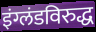
इंग्लंडविरुद्ध